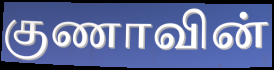
குணாவின்